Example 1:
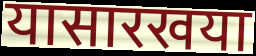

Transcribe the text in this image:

यासारखया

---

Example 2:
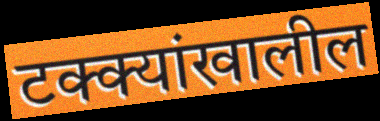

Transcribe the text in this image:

टक्क्यांखालील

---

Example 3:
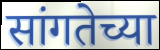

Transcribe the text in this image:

सांगतेच्या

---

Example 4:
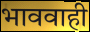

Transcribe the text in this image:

भाववाही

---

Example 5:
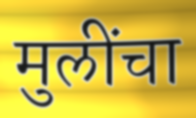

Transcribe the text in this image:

मुलींचा